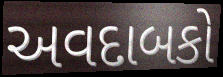
અવદાબકો